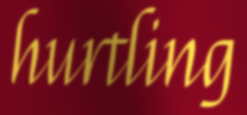
hurtling